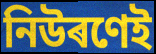
নিউৰণেই